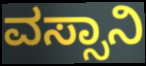
ವಸ್ಸಾನಿ